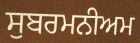
ਸੁਬਰਮਨੀਅਮ